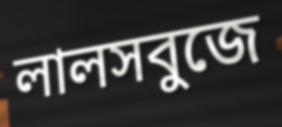
লালসবুজে